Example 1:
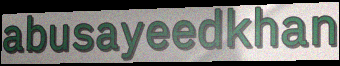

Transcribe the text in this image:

abusayeedkhan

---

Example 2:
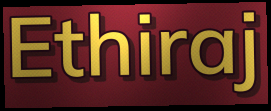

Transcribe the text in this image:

Ethiraj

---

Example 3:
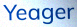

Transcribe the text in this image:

Yeager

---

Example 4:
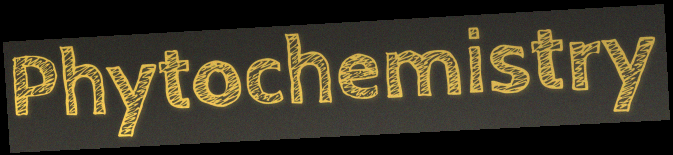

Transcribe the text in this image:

Phytochemistry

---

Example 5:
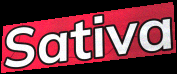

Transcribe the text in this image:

Sativa